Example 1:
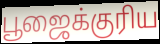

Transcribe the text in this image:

பூஜைக்குரிய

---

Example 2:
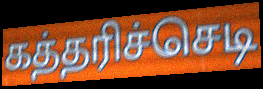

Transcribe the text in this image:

கத்தரிச்செடி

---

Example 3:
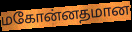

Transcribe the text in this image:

மகோன்னதமான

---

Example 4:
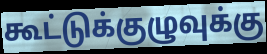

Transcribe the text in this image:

கூட்டுக்குழுவுக்கு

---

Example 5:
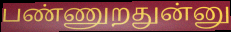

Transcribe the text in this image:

பண்ணுறதுன்னு